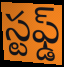
స్టఫ్డ్